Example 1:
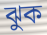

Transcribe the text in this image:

ঝুক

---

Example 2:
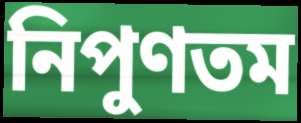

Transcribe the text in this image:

নিপুণতম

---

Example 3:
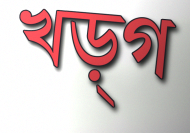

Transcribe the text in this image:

খড়্‌গ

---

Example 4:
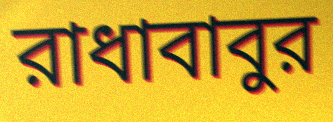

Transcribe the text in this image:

রাধাবাবুর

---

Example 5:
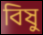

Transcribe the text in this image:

বিষু